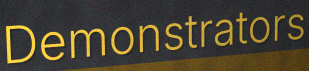
Demonstrators